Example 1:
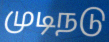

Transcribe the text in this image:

முடிநடு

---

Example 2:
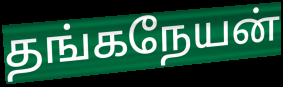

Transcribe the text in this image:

தங்கநேயன்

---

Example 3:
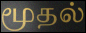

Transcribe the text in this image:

மூதல்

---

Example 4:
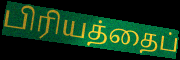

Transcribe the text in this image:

பிரியத்தைப்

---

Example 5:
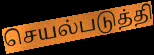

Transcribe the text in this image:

செயல்படுத்தி